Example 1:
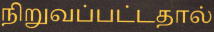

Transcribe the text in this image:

நிறுவப்பட்டதால்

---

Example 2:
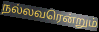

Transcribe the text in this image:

நல்லவரென்றும்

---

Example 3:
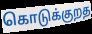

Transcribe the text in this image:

கொடுக்குறத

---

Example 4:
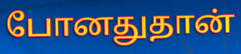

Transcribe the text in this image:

போனதுதான்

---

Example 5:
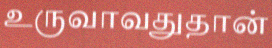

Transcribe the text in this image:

உருவாவதுதான்